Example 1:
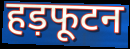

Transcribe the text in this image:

हड़फूटन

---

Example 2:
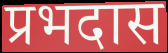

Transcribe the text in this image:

प्रभदास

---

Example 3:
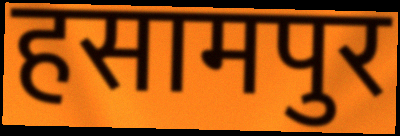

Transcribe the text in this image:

हसामपुर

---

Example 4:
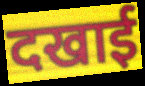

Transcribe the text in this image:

दखाई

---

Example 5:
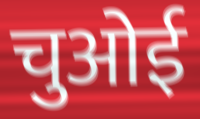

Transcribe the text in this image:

चुओई